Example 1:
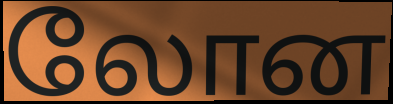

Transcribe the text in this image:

லோன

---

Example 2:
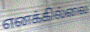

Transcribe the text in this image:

எனக்கில்லை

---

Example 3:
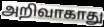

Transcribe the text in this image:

அறிவாகாது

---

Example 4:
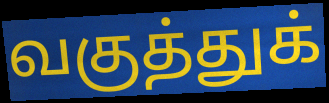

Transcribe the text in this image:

வகுத்துக்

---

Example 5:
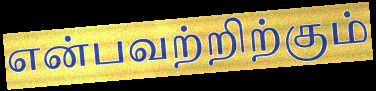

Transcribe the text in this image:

என்பவற்றிற்கும்